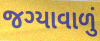
જગ્યાવાળું